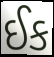
ઈક